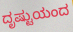
ದೃಷ್ಟುಯಂದ